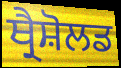
ਥ੍ਰੈਸ਼ੋਲਡ